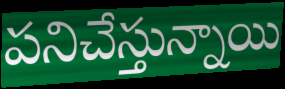
పనిచేస్తున్నాయి